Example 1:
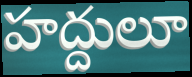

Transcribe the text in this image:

హద్దులూ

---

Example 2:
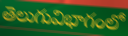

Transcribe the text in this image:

తెలుగువిభాగంలో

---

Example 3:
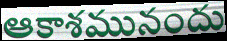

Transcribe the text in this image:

ఆకాశమునందు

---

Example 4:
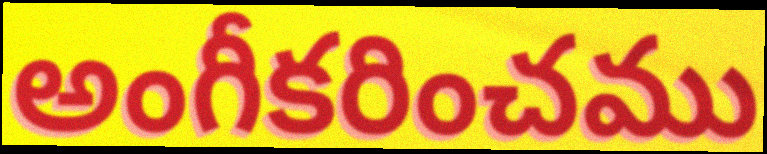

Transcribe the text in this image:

అంగీకరించము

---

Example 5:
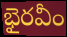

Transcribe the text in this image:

భైరవీం